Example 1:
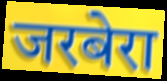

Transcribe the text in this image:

जरबेरा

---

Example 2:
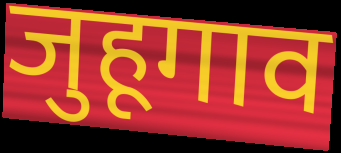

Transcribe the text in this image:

जुहूगाव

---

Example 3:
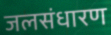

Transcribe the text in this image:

जलसंधारण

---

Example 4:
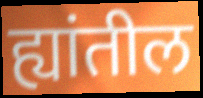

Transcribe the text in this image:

ह्यांतील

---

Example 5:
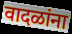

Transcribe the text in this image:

वादळांना